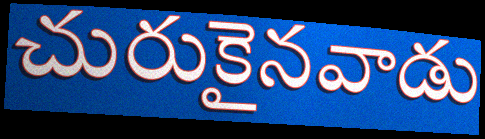
చురుకైనవాడు